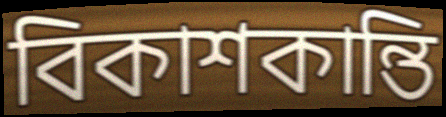
বিকাশকান্তি